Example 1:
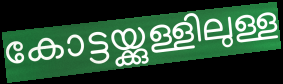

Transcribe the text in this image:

കോട്ടയ്ക്കുള്ളിലുള്ള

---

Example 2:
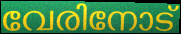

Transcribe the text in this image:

വേരിനോട്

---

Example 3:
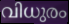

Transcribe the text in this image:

വിധുരം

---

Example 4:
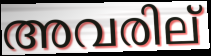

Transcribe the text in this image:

അവരില്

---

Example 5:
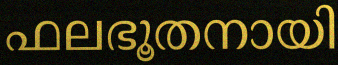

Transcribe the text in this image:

ഫലഭൂതനായി